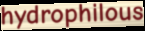
hydrophilous